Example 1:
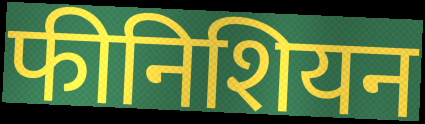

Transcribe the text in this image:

फीनिशियन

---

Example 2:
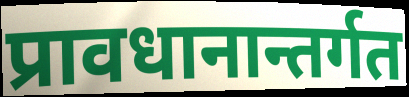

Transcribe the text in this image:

प्रावधानान्तर्गत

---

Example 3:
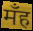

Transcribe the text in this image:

मँह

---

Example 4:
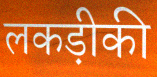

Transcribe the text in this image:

लकड़ीकी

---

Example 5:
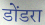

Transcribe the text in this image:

डोंडरा